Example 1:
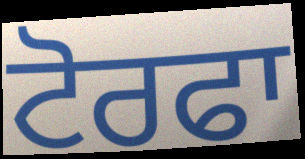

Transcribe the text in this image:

ਟੋਰਫਾ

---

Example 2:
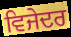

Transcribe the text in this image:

ਵਿਜੇਦਰ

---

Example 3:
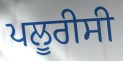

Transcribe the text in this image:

ਪਲੂਰੀਸੀ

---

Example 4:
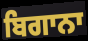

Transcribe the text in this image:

ਬਿਗਾਨਾ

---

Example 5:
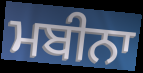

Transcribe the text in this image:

ਮਬੀਨਾ